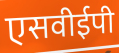
एसवीईपी